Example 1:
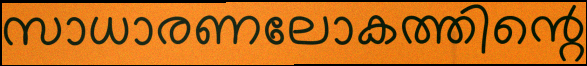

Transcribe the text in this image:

സാധാരണലോകത്തിന്റെ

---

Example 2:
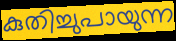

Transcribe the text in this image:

കുതിച്ചുപായുന്ന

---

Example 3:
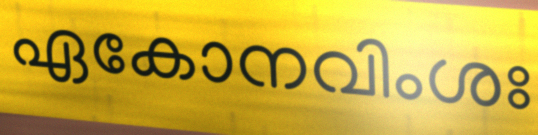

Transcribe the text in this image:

ഏകോനവിംശഃ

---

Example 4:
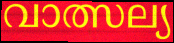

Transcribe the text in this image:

വാത്സല്യ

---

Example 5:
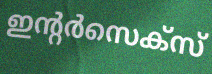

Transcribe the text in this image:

ഇന്റർസെക്സ്